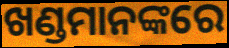
ଖଣ୍ଡମାନଙ୍କରେ